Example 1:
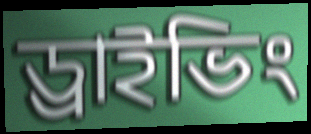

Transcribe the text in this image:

ড্রাইভিং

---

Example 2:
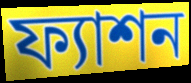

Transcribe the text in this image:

ফ্যাশন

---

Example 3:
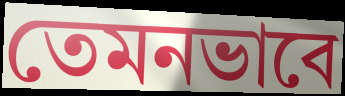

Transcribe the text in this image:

তেমনভাবে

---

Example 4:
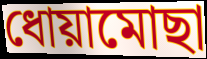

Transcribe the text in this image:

ধোয়ামোছা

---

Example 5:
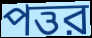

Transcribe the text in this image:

পত্তর